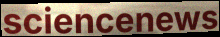
sciencenews